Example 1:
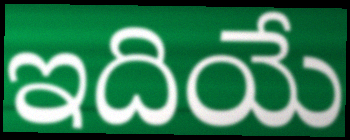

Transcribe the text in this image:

ఇదియే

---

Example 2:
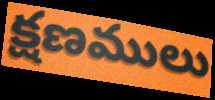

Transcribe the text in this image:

క్షణములు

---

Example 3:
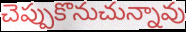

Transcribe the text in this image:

చెప్పుకొనుచున్నావు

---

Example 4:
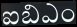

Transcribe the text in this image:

ఐబిఎం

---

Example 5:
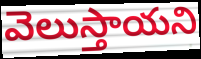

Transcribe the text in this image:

వెలుస్తాయని